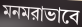
মনমরাভাবে